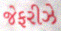
જેફરીઝે